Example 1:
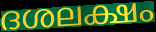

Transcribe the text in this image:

ദശലക്ഷം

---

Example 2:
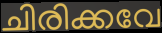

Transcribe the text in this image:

ചിരിക്കവേ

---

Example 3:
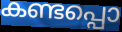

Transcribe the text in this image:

കണ്ടപ്പൊ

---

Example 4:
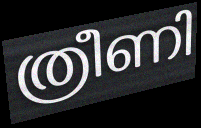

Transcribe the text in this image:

ത്രീണി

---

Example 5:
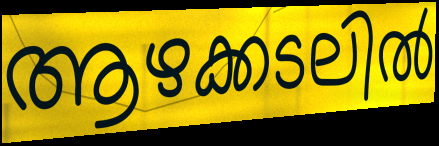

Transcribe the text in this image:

ആഴക്കടലിൽ